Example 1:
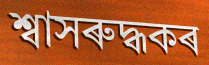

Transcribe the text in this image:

শ্বাসৰুদ্ধকৰ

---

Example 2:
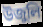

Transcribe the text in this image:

উজুলি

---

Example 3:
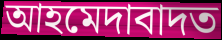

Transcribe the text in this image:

আহমেদাবাদত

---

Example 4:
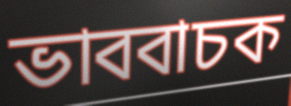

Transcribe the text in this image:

ভাববাচক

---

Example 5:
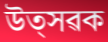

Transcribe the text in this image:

উত্সৱক